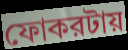
ফোকরটায়